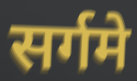
सर्गमे